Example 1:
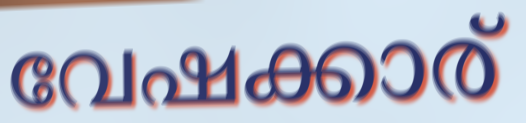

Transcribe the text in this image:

വേഷക്കാര്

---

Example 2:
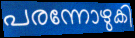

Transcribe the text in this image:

പരന്നോഴുകി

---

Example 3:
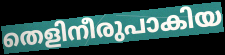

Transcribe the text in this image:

തെളിനീരുപാകിയ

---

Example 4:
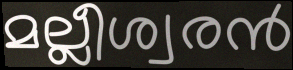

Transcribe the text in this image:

മല്ലീശ്വരൻ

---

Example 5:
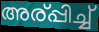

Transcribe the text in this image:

അര്പ്പിച്ച്